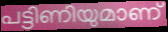
പട്ടിണിയുമാണ്